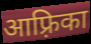
आफ़्रिका